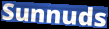
Sunnuds